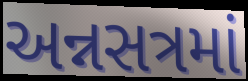
અન્નસત્રમાં